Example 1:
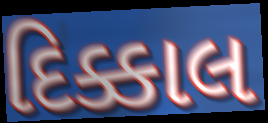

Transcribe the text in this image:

દિક્કાલ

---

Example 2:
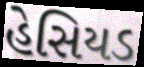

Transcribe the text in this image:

હેસિયડ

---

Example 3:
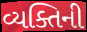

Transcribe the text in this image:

વ્યક્તિની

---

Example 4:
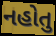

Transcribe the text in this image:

નહોતુ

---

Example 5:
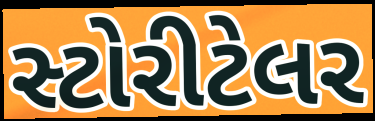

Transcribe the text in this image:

સ્ટોરીટેલર